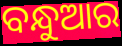
ବନ୍ଧୁଆର